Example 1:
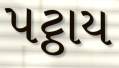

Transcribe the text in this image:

પટ્ઠાય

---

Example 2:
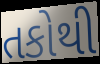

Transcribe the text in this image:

તકોથી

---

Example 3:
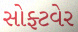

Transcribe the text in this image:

સોફ્ટવેર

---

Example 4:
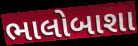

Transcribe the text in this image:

ભાલોબાશા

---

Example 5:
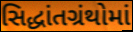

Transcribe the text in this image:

સિદ્ધાંતગ્રંથોમાં